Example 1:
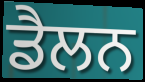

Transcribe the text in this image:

ਡੈਲਨ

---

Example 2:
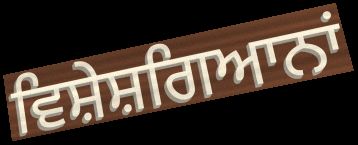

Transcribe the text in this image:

ਵਿਸ਼ੇਸ਼ਗਿਆਨਾਂ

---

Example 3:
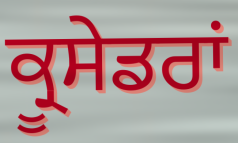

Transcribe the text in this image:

ਕ੍ਰੂਸੇਡਰਾਂ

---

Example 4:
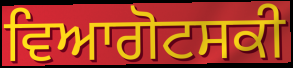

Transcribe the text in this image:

ਵਿਆਗੋਟਸਕੀ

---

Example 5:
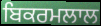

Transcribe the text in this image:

ਬਿਕਰਮਲਾਲ